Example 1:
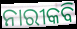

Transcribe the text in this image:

ନାରୀକବି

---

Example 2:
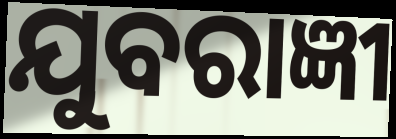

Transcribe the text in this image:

ଯୁବରାଜ୍ଞୀ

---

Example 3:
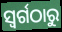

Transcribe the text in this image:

ସ୍ଵର୍ଗଠାରୁ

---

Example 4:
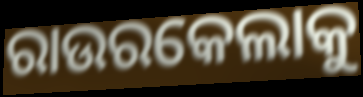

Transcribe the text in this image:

ରାଉରକେଲାକୁ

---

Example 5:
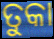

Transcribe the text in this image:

ତୁକା